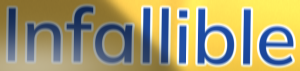
Infallible